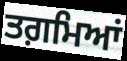
ਤਗ਼ਮਿਆਂ